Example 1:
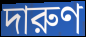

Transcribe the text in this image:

দারুণ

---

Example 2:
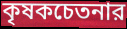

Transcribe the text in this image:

কৃষকচেতনার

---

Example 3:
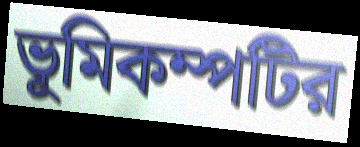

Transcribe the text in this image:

ভূমিকম্পটির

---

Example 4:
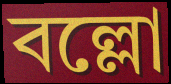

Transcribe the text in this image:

বল্লো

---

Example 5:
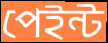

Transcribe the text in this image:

পেইন্ট